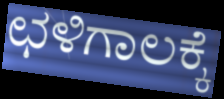
ಛಳಿಗಾಲಕ್ಕೆ